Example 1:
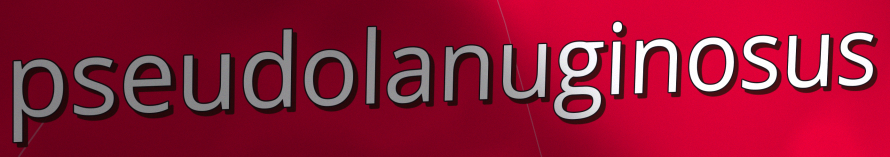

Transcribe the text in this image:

pseudolanuginosus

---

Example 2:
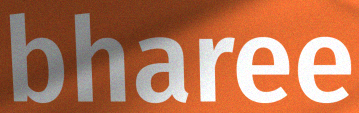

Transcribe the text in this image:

bharee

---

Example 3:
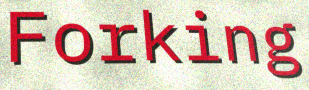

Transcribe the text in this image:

Forking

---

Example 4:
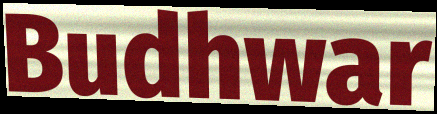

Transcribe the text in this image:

Budhwar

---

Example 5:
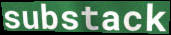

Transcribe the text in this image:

substack